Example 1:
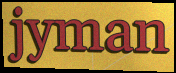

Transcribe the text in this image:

jyman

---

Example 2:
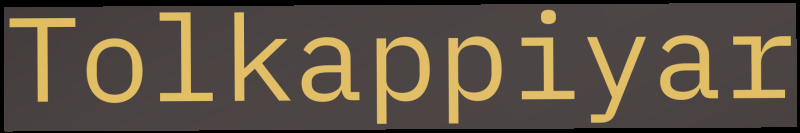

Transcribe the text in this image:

Tolkappiyar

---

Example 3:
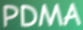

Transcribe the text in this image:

PDMA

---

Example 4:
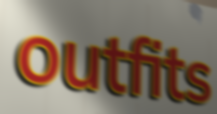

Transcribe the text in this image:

outfits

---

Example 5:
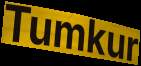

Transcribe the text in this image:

Tumkur